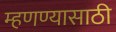
म्हणण्यासाठी